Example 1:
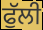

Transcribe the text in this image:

ਫੁੱਲੀ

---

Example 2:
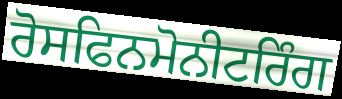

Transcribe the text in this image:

ਰੋਸਫਿਨਮੋਨੀਟਰਿੰਗ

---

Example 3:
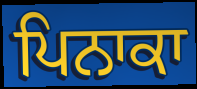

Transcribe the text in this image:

ਪਿਨਾਕਾ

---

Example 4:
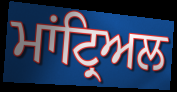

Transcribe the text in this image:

ਮਾਂਟ੍ਰਿਅਲ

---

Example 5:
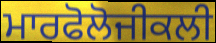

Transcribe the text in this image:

ਮਾਰਫੋਲੋਜੀਕਲੀ